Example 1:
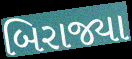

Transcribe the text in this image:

બિરાજ્યા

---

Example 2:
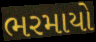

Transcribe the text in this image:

ભરમાયો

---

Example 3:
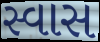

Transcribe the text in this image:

સ્વાસ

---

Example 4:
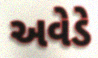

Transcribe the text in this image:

અવેડે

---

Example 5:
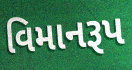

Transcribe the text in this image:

વિમાનરૂપ